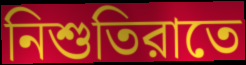
নিশুতিরাতে